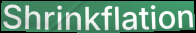
Shrinkflation